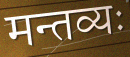
मन्तव्यः